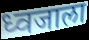
ध्वजाला